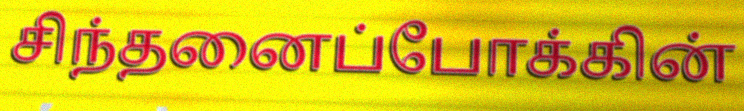
சிந்தனைப்போக்கின்